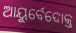
ଆୟୁର୍ବେଦୋକ୍ତ